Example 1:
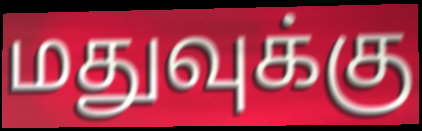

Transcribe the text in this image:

மதுவுக்கு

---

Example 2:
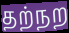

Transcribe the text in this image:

தற்நற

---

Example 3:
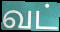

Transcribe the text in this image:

வட்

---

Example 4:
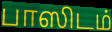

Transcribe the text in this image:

பாஸிடம்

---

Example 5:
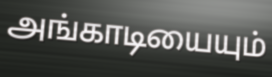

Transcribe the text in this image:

அங்காடியையும்